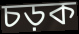
চড়ক